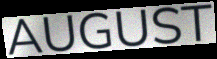
AUGUST